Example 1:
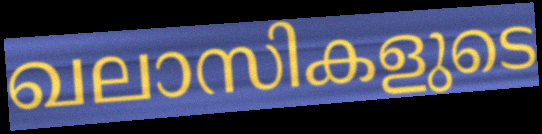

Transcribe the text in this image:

ഖലാസികളുടെ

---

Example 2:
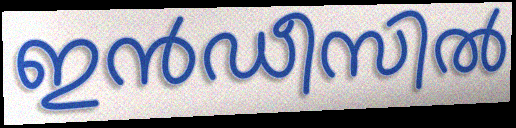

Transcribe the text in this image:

ഇൻഡീസിൽ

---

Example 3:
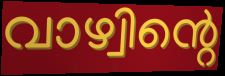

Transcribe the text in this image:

വാഴ്വിന്റെ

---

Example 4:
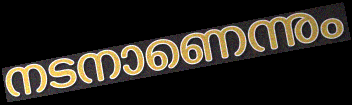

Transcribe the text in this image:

നടനാണെന്നും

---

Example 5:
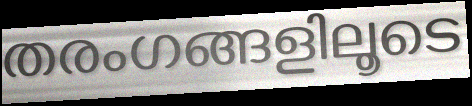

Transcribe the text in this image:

തരംഗങ്ങളിലൂടെ